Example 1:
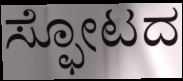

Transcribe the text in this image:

ಸ್ಫೋಟದ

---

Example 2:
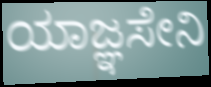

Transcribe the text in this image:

ಯಾಜ್ಞಸೇನಿ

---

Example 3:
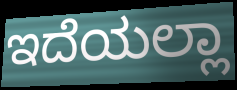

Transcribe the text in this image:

ಇದೆಯಲ್ಲಾ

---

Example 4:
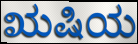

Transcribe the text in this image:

ಋಷಿಯ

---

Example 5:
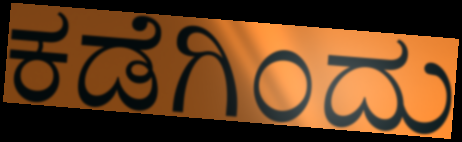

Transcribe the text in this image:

ಕಡೆಗಿಂದು